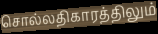
சொல்லதிகாரத்திலும்